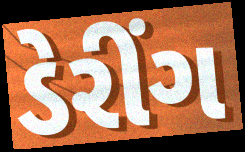
ડેરીંગ